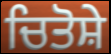
ਚਿਤੋਸ਼ੇ